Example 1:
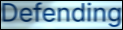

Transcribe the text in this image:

Defending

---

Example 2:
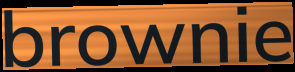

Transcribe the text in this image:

brownie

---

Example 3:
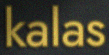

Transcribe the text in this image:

kalas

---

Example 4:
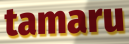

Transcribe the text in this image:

tamaru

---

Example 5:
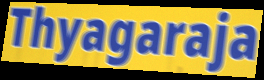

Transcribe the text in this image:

Thyagaraja